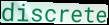
discrete